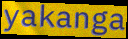
yakanga